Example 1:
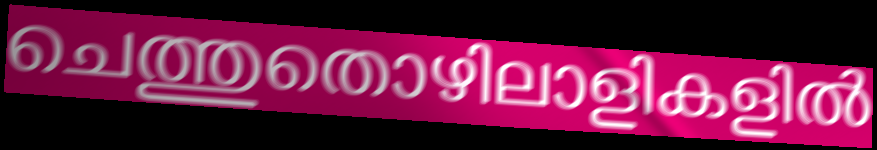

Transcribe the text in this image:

ചെത്തുതൊഴിലാളികളിൽ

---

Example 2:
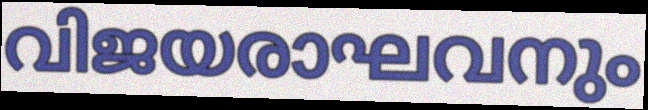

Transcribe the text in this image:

വിജയരാഘവനും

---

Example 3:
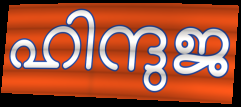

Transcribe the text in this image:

ഹിന്ദുജ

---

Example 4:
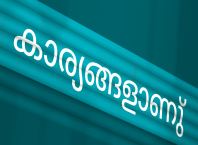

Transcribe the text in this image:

കാര്യങ്ങളാണു്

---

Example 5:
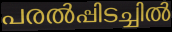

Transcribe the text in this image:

പരൽപ്പിടച്ചിൽ